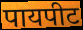
पायपीट